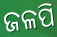
ଜଳପି